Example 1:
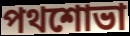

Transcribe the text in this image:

পথশোভা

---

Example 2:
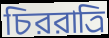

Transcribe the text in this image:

চিররাত্রি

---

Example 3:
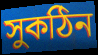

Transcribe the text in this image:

সুকঠিন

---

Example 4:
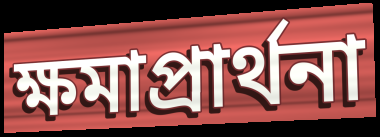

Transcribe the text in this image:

ক্ষমাপ্রার্থনা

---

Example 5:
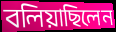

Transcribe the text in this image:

বলিয়াছিলেন